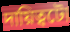
দায়িত্বটো